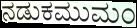
ನಡುಕಮುಮಂ